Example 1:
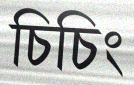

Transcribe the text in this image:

চিচিং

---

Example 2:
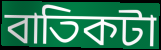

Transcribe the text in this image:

বাতিকটা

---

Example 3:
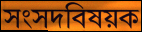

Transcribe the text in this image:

সংসদবিষয়ক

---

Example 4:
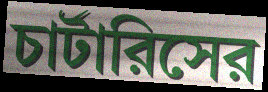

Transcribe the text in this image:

চার্টারিসের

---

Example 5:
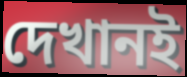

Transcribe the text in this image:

দেখানই